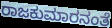
ರಾಜಕುಮಾರನಂತೆ